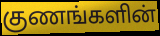
குணங்களின்